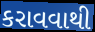
કરાવવાથી